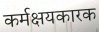
कर्मक्षयकारक